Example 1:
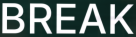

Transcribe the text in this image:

BREAK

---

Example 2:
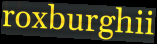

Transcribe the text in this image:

roxburghii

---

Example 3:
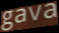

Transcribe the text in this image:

gava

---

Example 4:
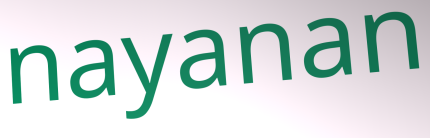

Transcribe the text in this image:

nayanan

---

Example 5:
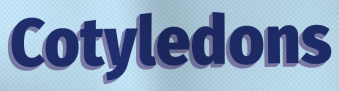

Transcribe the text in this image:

Cotyledons